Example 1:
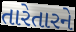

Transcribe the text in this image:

તારેતારને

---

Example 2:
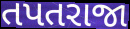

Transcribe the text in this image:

તપતરાજા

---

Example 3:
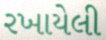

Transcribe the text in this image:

રખાયેલી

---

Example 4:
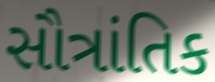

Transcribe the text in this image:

સૌત્રાંતિક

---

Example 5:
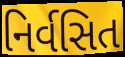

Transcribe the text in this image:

નિર્વસિત